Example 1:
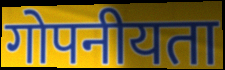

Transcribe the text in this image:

गोपनीयता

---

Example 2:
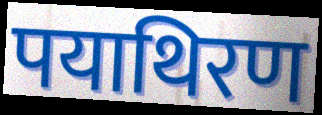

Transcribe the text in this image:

पयाथिरण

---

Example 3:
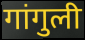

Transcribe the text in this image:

गांगुली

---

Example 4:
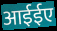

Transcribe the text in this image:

आईईए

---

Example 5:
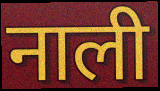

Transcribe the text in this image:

नाली